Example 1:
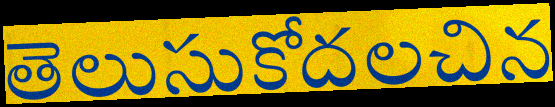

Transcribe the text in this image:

తెలుసుకోదలచిన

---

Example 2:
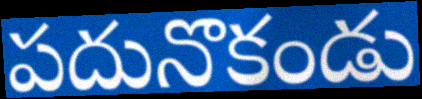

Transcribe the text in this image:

పదునొకండు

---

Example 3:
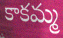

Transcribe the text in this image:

కాకమ్మ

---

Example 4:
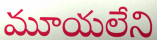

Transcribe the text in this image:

మూయలేని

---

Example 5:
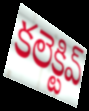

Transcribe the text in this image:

కలెక్టివ్